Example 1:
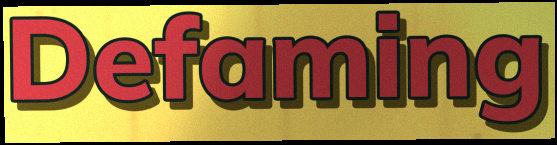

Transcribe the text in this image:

Defaming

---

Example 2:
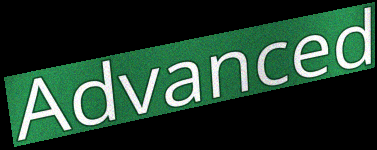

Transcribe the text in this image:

Advanced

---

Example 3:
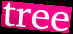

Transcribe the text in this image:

tree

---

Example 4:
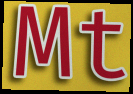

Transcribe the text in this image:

Mt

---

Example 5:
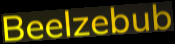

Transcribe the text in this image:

Beelzebub